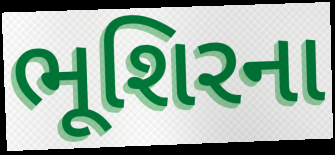
ભૂશિરના